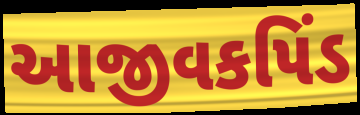
આજીવકપિંડ